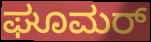
ಘೂಮರ್